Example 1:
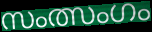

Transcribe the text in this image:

സംത്സംഗം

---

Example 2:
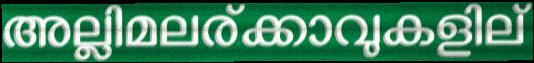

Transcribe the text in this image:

അല്ലിമലര്ക്കാവുകളില്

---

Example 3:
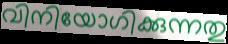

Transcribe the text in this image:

വിനിയോഗിക്കുന്നതു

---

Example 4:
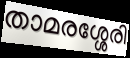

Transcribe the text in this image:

താമരശ്ശേരി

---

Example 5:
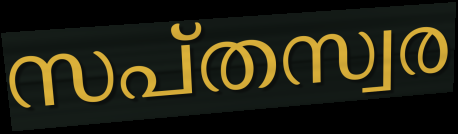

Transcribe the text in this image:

സപ്തസ്വര